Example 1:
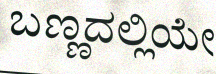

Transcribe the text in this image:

ಬಣ್ಣದಲ್ಲಿಯೇ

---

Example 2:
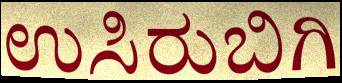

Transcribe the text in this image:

ಉಸಿರುಬಿಗಿ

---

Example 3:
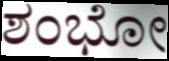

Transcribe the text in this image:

ಶಂಭೋ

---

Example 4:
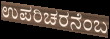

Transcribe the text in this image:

ಉಪರಿಚರನೆಂಬ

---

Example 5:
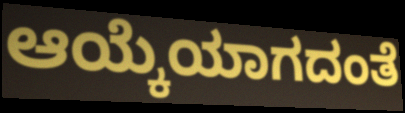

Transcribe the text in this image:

ಆಯ್ಕೆಯಾಗದಂತೆ